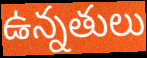
ఉన్నతులు